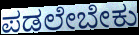
ಪಡಲೇಬೇಕು